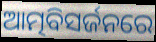
ଆତ୍ମବିସର୍ଜନରେ